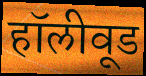
हॉलीवूड